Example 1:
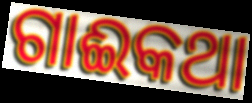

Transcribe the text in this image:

ଗାଈକଥା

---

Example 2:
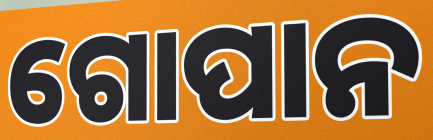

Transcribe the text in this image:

ଗୋପାନ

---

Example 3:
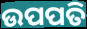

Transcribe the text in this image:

ଉପପତି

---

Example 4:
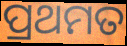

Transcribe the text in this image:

ପ୍ରଥମତ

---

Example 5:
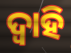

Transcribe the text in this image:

ଦ୍ଵାହି